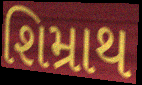
શિમ્રાથ